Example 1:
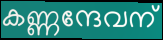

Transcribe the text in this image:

കണ്ണന്ദേവന്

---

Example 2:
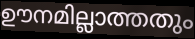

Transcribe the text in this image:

ഊനമില്ലാത്തതും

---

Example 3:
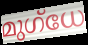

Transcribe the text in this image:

മുഗ്ധേ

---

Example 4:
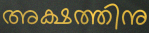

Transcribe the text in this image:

അക്ഷത്തിനു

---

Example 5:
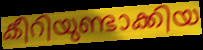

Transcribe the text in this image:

കീറിയുണ്ടാക്കിയ